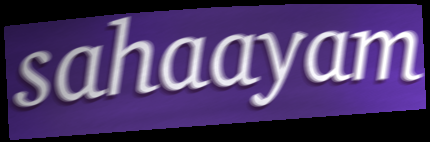
sahaayam